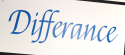
Differance